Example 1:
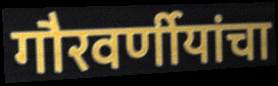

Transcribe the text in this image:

गौरवर्णीयांचा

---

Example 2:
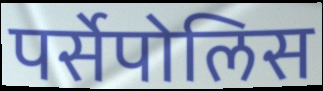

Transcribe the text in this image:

पर्सेपोलिस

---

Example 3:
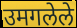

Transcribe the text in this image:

उमगलेले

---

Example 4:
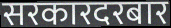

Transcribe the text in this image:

सरकारदरबार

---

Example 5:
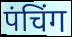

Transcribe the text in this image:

पंचिंग